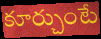
కూర్చుంటే